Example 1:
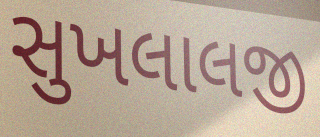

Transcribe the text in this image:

સુખલાલજી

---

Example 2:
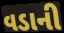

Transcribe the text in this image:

વડાની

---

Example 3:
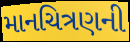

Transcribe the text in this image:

માનચિત્રણની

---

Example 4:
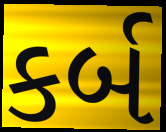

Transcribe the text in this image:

કર્બ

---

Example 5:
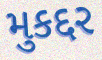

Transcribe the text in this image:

મુકદ્દર